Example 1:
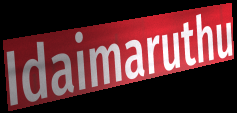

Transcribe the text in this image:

Idaimaruthu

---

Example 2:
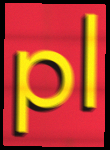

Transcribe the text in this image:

pl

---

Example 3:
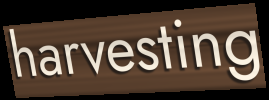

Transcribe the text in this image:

harvesting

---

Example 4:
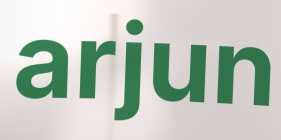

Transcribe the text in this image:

arjun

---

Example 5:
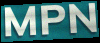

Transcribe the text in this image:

MPN